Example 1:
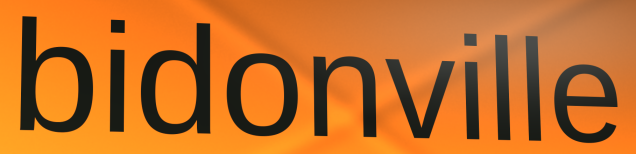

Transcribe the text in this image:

bidonville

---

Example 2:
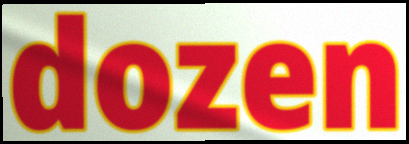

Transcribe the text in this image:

dozen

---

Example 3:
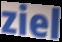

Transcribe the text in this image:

ziel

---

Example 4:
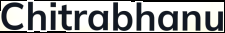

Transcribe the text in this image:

Chitrabhanu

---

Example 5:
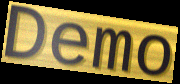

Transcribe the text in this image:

Demo